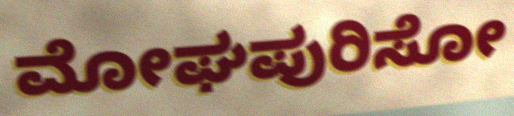
ಮೋಘಪುರಿಸೋ